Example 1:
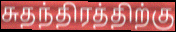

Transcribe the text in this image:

சுதந்திரத்திற்கு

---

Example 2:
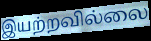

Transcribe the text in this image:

இயற்றவில்லை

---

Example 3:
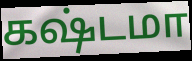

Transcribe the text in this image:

கஷ்டமா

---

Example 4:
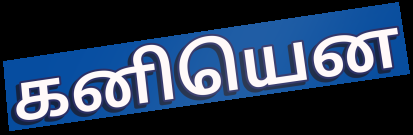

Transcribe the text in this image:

கனியென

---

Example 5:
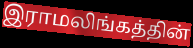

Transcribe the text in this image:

இராமலிங்கத்தின்